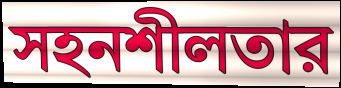
সহনশীলতার